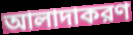
আলাদাকরণ